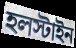
হলস্টাইন